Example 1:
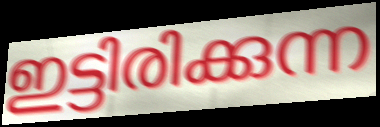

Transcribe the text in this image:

ഇട്ടിരിക്കുന്ന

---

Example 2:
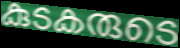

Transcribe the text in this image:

കുടകരുടെ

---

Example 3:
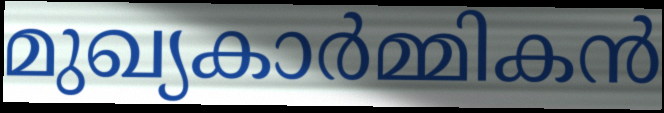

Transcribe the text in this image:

മുഖ്യകാർമ്മികൻ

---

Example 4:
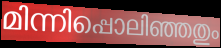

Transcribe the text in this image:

മിന്നിപ്പൊലിഞ്ഞതും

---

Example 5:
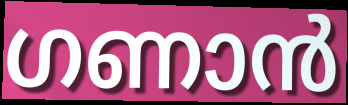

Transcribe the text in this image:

ഗണാൻ